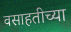
वसाहतीच्या